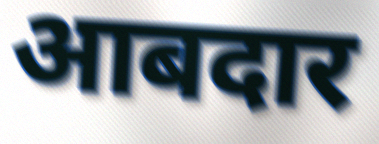
आबदार